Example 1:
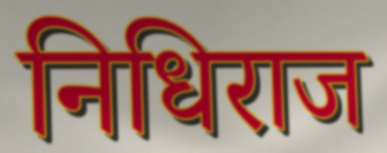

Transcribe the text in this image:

निधिराज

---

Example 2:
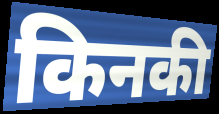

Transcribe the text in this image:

किनकी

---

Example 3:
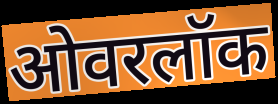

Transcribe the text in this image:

ओवरलॉक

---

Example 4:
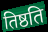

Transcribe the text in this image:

तिष्ठति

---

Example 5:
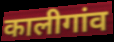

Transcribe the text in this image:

कालीगांव